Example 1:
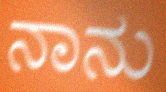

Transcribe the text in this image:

ನಾನು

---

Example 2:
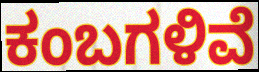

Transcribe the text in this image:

ಕಂಬಗಳಿವೆ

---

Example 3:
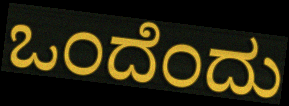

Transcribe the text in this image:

ಒಂದೆಂದು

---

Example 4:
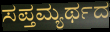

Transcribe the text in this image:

ಸಪ್ತಮ್ಯರ್ಥದ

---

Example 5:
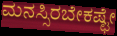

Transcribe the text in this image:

ಮನಸ್ಸಿರಬೇಕಷ್ಟೇ